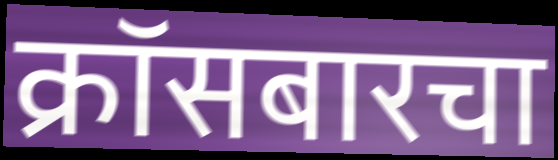
क्रॉसबारचा